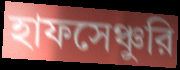
হাফসেঞ্চুরি